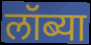
लॉब्या